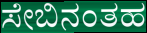
ಸೇಬಿನಂತಹ